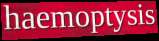
haemoptysis